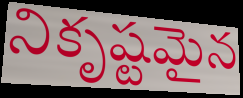
నికృష్టమైన